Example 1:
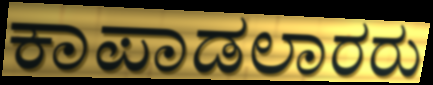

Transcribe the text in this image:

ಕಾಪಾಡಲಾರರು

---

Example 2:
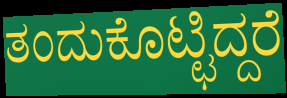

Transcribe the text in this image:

ತಂದುಕೊಟ್ಟಿದ್ದರೆ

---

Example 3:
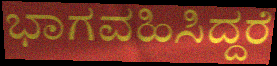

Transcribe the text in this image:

ಭಾಗವಹಿಸಿದ್ದರೆ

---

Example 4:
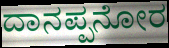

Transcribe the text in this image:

ದಾನಪ್ಪನೋರ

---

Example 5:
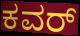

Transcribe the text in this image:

ಕವರ್